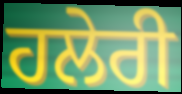
ਹਲੇਰੀ